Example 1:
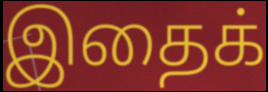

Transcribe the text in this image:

இதைக்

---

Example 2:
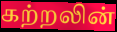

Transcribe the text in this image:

கற்றலின்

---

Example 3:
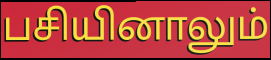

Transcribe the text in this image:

பசியினாலும்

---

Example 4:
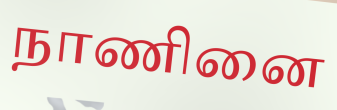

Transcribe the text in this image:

நாணினை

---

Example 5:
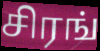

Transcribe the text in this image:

சிரங்